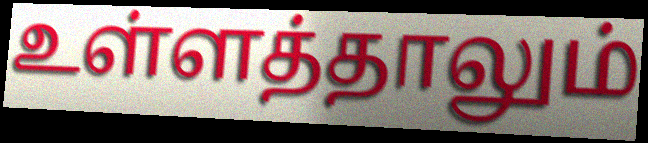
உள்ளத்தாலும்